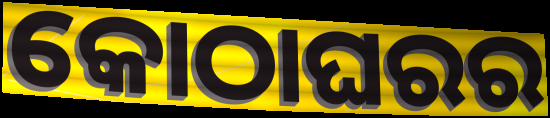
କୋଠାଘରର